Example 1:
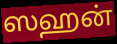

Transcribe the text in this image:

ஸஹன்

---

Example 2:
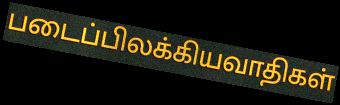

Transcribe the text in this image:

படைப்பிலக்கியவாதிகள்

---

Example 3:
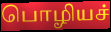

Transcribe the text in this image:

பொழியச்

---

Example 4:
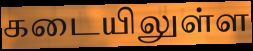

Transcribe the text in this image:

கடையிலுள்ள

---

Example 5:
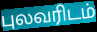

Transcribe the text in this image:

புலவரிடம்